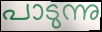
പാടുന്നു